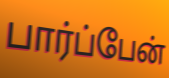
பார்ப்பேன்